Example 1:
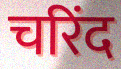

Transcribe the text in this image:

चरिंद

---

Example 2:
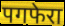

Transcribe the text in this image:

पगफेरा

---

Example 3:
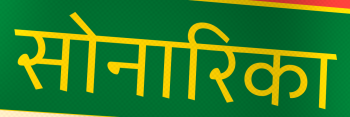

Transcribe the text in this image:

सोनारिका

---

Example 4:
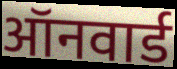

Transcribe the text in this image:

ऑनवार्ड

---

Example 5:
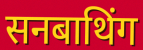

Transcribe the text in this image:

सनबाथिंग